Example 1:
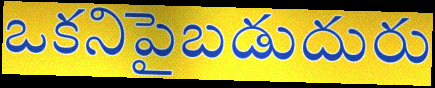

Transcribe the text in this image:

ఒకనిపైబడుదురు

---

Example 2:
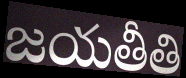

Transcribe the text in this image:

జయతీతి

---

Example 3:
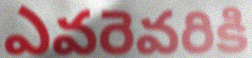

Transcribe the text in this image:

ఎవరెవరికి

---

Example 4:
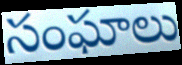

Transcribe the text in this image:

సంఘాలు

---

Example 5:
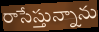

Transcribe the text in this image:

రాసేస్తున్నాను